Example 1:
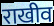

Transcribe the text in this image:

राखीव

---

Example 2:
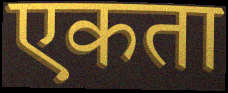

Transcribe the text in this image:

एकता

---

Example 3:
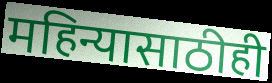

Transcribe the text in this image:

महिन्यासाठीही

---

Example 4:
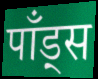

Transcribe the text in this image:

पाँड्स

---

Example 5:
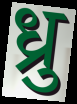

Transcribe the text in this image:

ध्रु